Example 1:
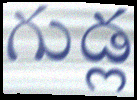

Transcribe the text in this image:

గుడ్ల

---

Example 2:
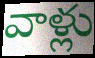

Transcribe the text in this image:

వాళ్లు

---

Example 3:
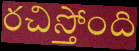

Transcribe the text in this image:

రచిస్తోంది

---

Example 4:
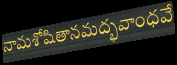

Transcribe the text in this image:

నామశోషితానమద్భవాంధవే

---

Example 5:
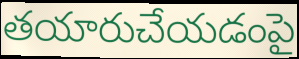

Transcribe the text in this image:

తయారుచేయడంపై